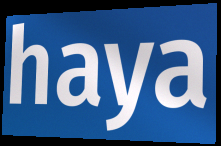
haya